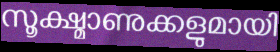
സൂക്ഷ്മാണുക്കളുമായി